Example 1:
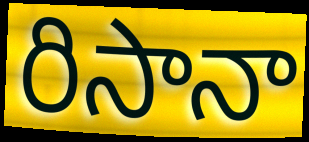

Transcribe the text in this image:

రిసానా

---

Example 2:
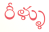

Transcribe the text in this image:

రీళ్ళు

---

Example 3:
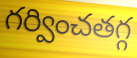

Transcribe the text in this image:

గర్వించతగ్గ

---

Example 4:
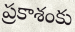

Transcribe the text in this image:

ప్రకాశంకు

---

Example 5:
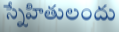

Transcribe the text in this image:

స్నేహితులందు